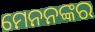
ମେନନଙ୍କର